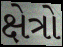
ક્ષેત્રો